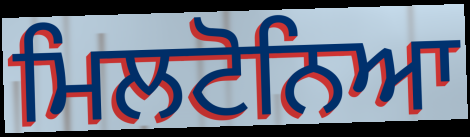
ਮਿਲਟੋਨਿਆ